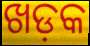
ଖଡ଼କ